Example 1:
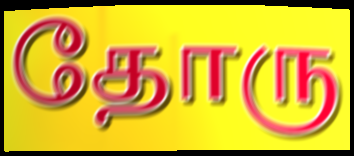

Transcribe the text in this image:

தோரு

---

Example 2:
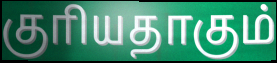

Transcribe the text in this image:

குரியதாகும்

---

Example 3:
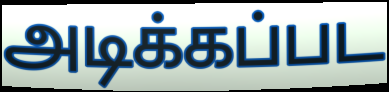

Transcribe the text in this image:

அடிக்கப்பட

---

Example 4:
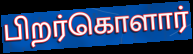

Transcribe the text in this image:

பிறர்கொளார்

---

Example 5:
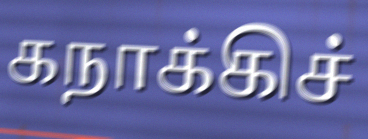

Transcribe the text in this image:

கநாக்கிச்